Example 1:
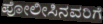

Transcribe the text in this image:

ಪೋಲೀಸಿನವರಿಗೆ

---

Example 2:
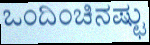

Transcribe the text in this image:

ಒಂದಿಂಚಿನಷ್ಟು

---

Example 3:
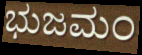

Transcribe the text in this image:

ಭುಜಮಂ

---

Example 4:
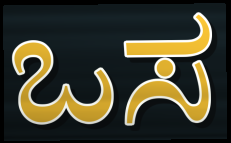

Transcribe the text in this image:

ಒಸ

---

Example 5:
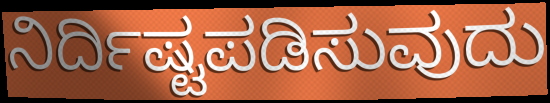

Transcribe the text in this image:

ನಿರ್ದಿಷ್ಟಪಡಿಸುವುದು